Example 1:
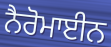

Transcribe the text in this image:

ਨੈਰੋਮਾਈਨ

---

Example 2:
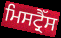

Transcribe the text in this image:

ਮਿਸਟ੍ਰੈੱਸ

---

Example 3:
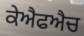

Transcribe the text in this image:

ਕੇਐਫਐਚ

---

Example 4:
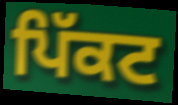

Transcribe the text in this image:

ਪਿੱਕਟ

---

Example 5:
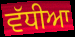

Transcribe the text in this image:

ਵੱਧੀਆ